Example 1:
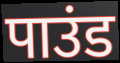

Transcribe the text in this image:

पाउंड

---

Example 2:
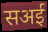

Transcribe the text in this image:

सअई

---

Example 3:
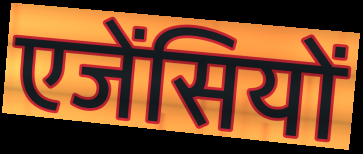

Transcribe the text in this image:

एजेंसियों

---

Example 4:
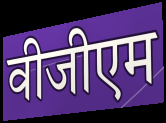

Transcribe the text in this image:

वीजीएम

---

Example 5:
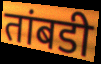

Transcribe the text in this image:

तांबडी